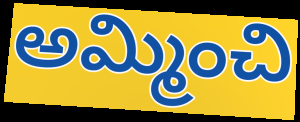
అమ్మించి